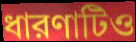
ধারণাটিও